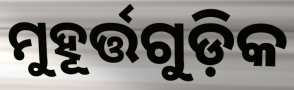
ମୁହୂର୍ତ୍ତଗୁଡ଼ିକ